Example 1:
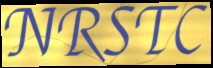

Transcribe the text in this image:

NRSTC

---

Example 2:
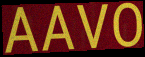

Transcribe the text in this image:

AAVO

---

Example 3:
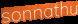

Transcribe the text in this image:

sonnathu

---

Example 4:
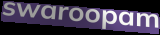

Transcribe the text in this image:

swaroopam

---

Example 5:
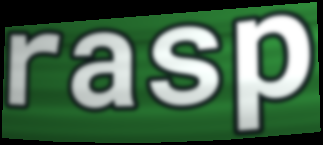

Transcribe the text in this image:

rasp